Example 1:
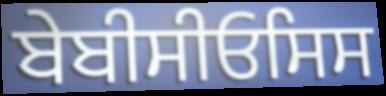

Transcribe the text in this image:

ਬੇਬੀਸੀਓਸਿਸ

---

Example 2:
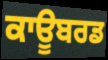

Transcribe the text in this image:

ਕਾਊਬਰਡ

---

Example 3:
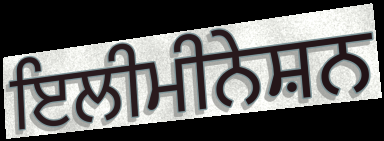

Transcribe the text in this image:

ਇਲੀਮੀਨੇਸ਼ਨ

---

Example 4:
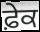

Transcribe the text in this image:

ਫ਼ੇਕ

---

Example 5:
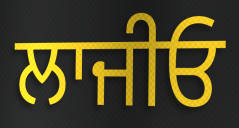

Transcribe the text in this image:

ਲਾਜੀਓ